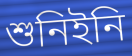
শুনিইনি